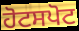
ਹੋਟਸਪੋਟ